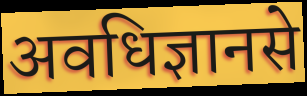
अवधिज्ञानसे